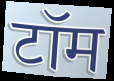
टॉम